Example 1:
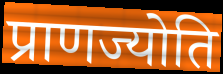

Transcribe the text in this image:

प्राणज्योति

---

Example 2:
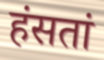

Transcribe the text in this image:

हंसतां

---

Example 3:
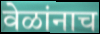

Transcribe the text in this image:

वेळांनाच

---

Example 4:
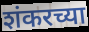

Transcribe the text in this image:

शंकरच्या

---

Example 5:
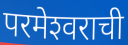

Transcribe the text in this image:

परमेश्‍वराची